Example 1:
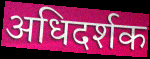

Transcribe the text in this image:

अधिदर्शक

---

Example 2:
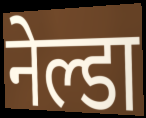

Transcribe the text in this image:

नेल्डा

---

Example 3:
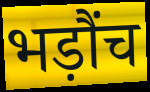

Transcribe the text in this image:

भड़ौंच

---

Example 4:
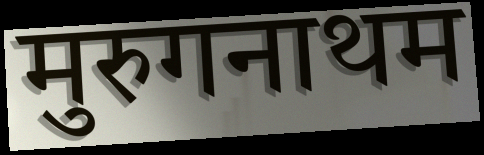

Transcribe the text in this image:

मुरुगनाथम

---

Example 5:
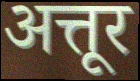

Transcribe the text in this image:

अत्तूर